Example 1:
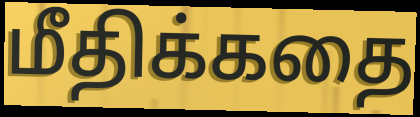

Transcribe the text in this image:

மீதிக்கதை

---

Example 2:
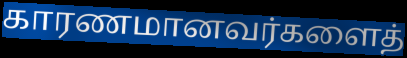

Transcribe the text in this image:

காரணமானவர்களைத்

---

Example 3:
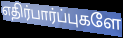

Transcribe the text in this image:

எதிர்பார்ப்புகளே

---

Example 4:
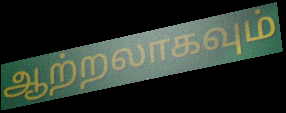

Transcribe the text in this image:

ஆற்றலாகவும்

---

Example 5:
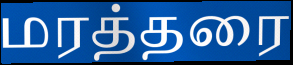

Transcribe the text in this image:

மரத்தரை